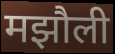
मझौली